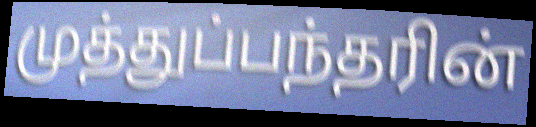
முத்துப்பந்தரின்